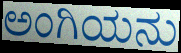
ಅಂಗಿಯನು